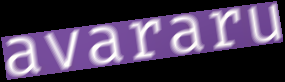
avararu